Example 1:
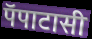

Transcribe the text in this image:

पॅपाटासी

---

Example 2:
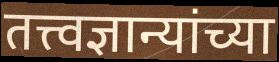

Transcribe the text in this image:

तत्त्वज्ञान्यांच्या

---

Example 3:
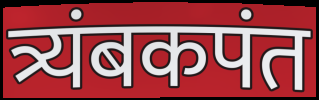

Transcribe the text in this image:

त्र्यंबकपंत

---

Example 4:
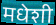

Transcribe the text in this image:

मधेशी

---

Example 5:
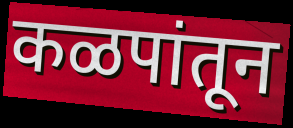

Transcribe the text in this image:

कळपांतून